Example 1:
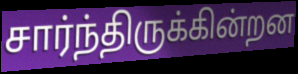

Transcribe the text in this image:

சார்ந்திருக்கின்றன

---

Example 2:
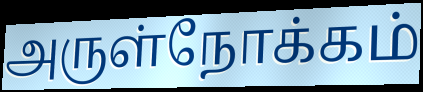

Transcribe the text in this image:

அருள்நோக்கம்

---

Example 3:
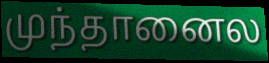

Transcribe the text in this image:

முந்தானைல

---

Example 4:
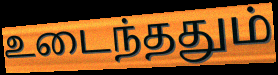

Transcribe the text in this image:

உடைந்ததும்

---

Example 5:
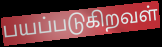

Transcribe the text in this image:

பயப்படுகிறவள்